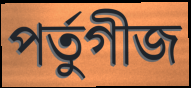
পর্তুগীজ